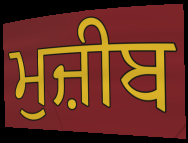
ਮੁਜ਼ੀਬ